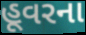
હૂવરના